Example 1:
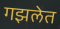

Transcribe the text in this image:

गझलेत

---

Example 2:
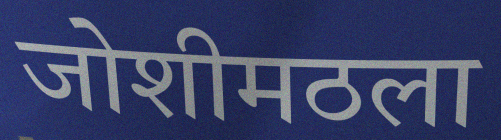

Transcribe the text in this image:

जोशीमठला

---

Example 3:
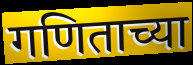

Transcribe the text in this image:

गणिताच्या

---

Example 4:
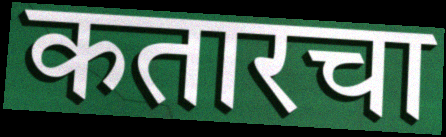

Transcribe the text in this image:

कतारचा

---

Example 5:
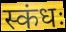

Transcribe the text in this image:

स्कंधः